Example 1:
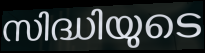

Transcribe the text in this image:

സിദ്ധിയുടെ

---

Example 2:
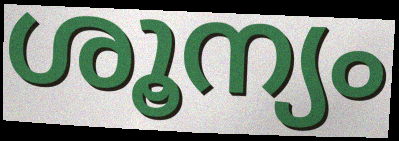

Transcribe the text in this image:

ശൂന്യം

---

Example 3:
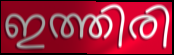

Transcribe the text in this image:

ഇത്തിരി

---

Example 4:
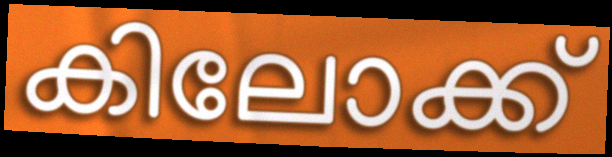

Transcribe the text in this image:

കിലോക്ക്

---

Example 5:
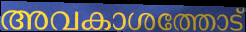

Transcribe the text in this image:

അവകാശത്തോട്